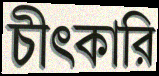
চীৎকারি